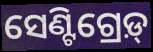
ସେଣ୍ଟିଗ୍ରେଡ଼୍